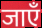
जाएँ